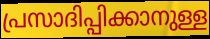
പ്രസാദിപ്പിക്കാനുള്ള